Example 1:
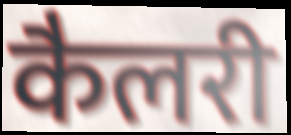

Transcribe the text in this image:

कैलरी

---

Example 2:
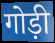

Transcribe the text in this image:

गोड़ी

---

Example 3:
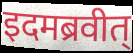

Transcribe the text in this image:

इदमब्रवीत्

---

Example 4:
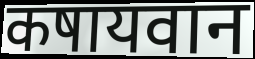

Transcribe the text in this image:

कषायवान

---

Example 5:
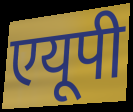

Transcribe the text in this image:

एयूपी